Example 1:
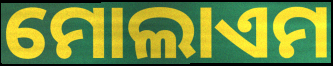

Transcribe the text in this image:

ମୋଲାଏମ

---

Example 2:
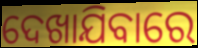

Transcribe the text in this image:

ଦେଖାଯିବାରେ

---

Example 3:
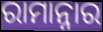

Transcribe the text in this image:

ରାମାନ୍ନାର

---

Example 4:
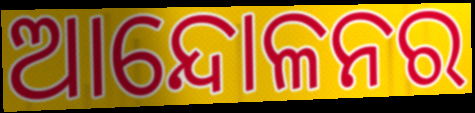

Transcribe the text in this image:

ଆନ୍ଦୋଳନର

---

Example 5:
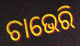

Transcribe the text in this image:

ଚାଭେରି